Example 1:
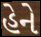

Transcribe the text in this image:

હેને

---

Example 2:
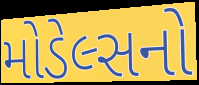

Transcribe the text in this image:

મોડેલ્સનો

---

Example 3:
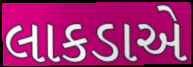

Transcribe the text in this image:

લાકડાએ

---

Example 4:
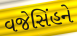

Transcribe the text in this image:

વજેસિંહને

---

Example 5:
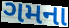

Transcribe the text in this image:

ગમના